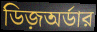
ডিজ়অর্ডার